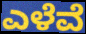
ಎಳೆವೆ